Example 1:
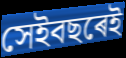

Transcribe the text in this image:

সেইবছৰেই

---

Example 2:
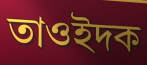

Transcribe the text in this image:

তাওইদক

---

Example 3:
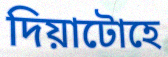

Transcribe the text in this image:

দিয়াটোহে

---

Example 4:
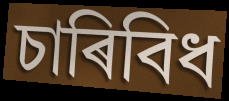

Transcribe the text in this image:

চাৰিবিধ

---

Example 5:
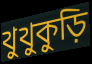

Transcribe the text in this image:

থুথুকুড়ি